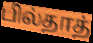
பில்தாத்